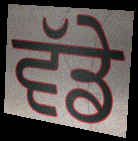
ਵੱਡੇ